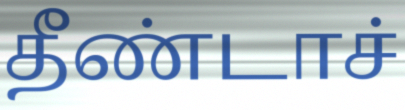
தீண்டாச்